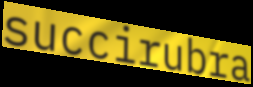
succirubra